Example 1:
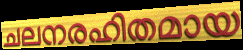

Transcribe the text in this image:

ചലനരഹിതമായ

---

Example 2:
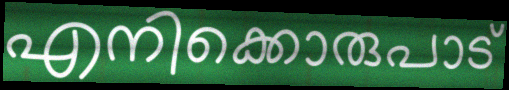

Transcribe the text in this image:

എനിക്കൊരുപാട്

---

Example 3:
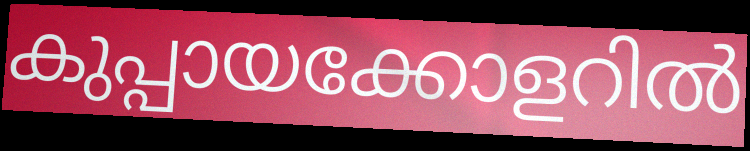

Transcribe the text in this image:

കുപ്പായക്കോളറിൽ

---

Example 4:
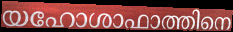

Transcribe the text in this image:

യഹോശാഫാത്തിനെ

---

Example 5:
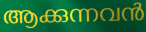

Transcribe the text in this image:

ആക്കുന്നവൻ